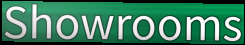
Showrooms